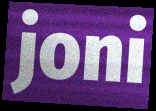
joni